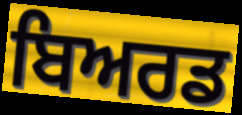
ਬਿਅਰਡ